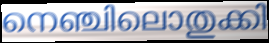
നെഞ്ചിലൊതുക്കി